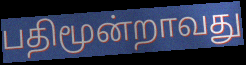
பதிமூன்றாவது